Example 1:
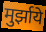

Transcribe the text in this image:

मुर्झाये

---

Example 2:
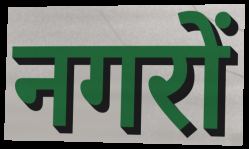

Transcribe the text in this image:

नगरों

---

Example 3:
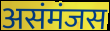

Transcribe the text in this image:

असंमंजस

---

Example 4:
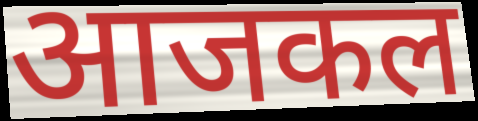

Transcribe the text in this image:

आजकल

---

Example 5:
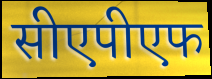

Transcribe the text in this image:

सीएपीएफ